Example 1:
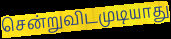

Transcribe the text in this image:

சென்றுவிடமுடியாது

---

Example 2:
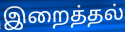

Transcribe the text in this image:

இறைத்தல்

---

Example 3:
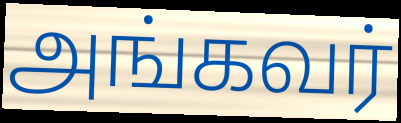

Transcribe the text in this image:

அங்கவர்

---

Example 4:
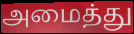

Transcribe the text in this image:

அமைத்து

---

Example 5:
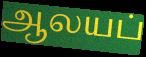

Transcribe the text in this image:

ஆலயப்